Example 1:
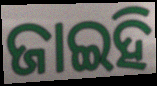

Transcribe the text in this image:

ଜାଇହି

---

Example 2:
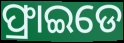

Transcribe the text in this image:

ଫ୍ରାଇଡେ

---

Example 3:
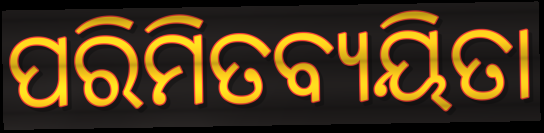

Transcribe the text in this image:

ପରିମିତବ୍ୟୟିତା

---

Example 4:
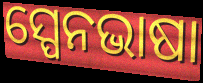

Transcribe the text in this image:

ସ୍ପେନଭାଷା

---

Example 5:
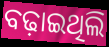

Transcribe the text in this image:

ବଢ଼ାଇଥିଲି